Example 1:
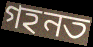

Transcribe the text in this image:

গহনত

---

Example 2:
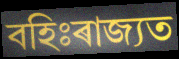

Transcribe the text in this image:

বহিঃৰাজ্যত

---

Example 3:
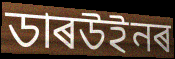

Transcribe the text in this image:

ডাৰউইনৰ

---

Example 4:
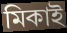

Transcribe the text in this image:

মিকাই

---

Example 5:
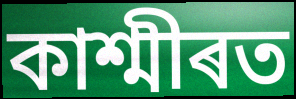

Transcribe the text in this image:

কাশ্মীৰত